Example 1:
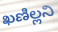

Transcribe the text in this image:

ఖణిల్లని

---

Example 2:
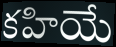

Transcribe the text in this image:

కహియే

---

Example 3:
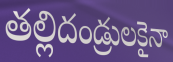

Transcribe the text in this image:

తల్లిదండ్రులకైనా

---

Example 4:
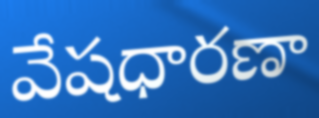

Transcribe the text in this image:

వేషధారణా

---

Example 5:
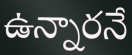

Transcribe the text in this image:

ఉన్నారనే